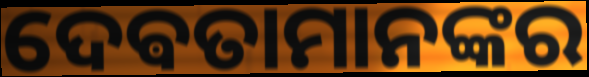
ଦେଵତାମାନଙ୍କର